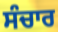
ਸੰਚਾਰ